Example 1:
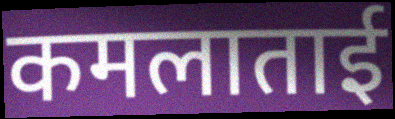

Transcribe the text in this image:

कमलाताई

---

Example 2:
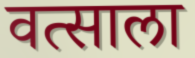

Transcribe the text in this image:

वत्साला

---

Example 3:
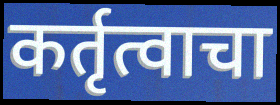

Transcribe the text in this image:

कर्तृत्वाचा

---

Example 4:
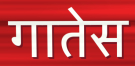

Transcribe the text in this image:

गातेस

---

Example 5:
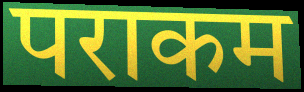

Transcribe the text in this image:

पराकम